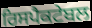
ਰਿਸਪੈਕਟੇਬਲ